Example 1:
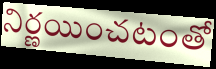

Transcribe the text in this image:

నిర్ణయించటంతో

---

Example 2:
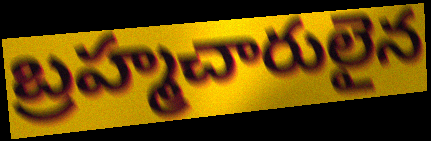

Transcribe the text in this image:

బ్రహ్మచారులైన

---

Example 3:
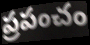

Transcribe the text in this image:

ప్రపంచం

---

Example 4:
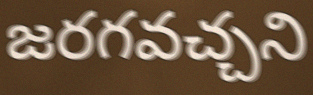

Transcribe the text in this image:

జరగవచ్చని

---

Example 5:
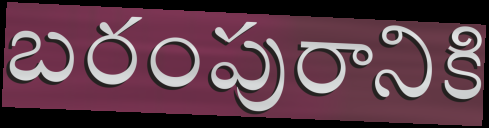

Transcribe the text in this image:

బరంపురానికి